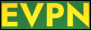
EVPN